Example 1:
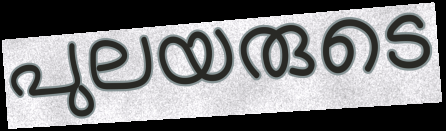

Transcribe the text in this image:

പുലയരുടെ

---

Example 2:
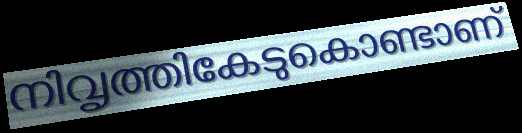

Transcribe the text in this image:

നിവൃത്തികേടുകൊണ്ടാണ്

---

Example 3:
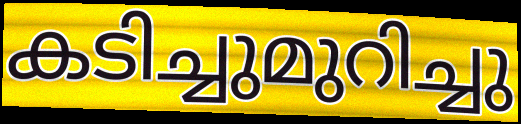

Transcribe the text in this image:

കടിച്ചുമുറിച്ചു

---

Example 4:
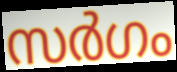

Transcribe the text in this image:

സർഗം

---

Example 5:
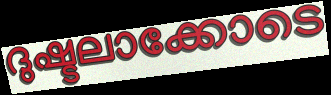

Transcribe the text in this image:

ദുഷ്ടലാക്കോടെ